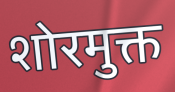
शोरमुक्त